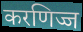
करणिज्ज